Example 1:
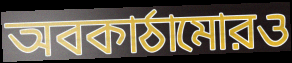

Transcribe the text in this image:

অবকাঠামোরও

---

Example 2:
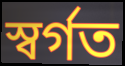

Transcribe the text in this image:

স্বর্গত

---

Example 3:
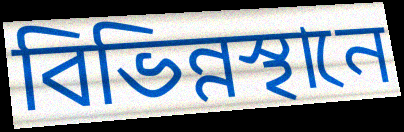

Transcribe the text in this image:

বিভিন্নস্থানে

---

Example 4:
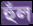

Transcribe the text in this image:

হুঁল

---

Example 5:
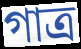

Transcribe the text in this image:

গাত্র